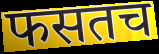
फसतच